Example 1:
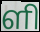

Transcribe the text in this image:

ளி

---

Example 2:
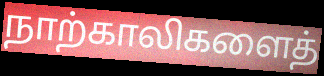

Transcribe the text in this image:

நாற்காலிகளைத்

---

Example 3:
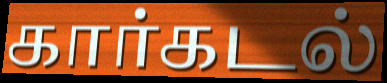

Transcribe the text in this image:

கார்கடல்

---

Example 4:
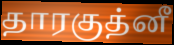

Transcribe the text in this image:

தாரகுத்னீ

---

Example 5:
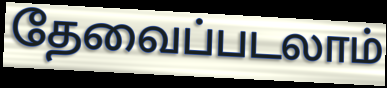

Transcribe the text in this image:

தேவைப்படலாம்